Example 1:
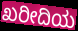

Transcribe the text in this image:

ಖರೀದಿಯ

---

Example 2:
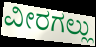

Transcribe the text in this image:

ವೀರಗಲ್ಲು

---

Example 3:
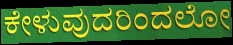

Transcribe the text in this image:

ಕೇಳುವುದರಿಂದಲೋ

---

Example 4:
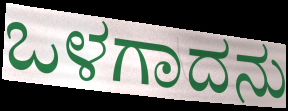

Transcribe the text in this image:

ಒಳಗಾದನು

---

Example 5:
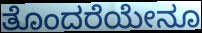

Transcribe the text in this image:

ತೊಂದರೆಯೇನೂ